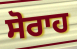
ਸੋਰਾਹ